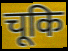
चूकि